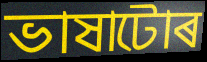
ভাষাটোৰ